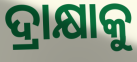
ଦ୍ରାକ୍ଷାକୁ